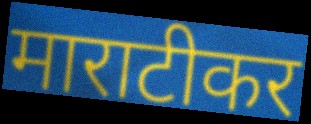
माराटीकर